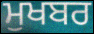
ਮੁਖਬਰ